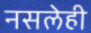
नसलेही